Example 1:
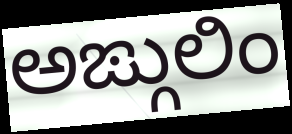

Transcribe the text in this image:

ಅಙ್ಗುಲಿಂ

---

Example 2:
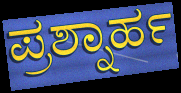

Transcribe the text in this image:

ಪ್ರಶ್ನಾರ್ಹ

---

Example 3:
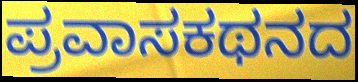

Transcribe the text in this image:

ಪ್ರವಾಸಕಥನದ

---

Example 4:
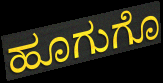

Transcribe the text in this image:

ಹೂಗುಗೊ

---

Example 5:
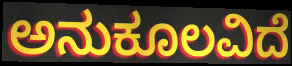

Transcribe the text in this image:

ಅನುಕೂಲವಿದೆ